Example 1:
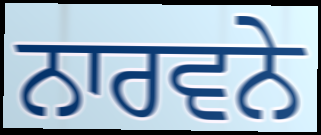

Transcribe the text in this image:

ਨਾਰਵਨੇ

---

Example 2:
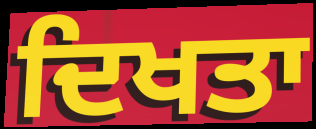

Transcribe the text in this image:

ਦਿਖਤਾ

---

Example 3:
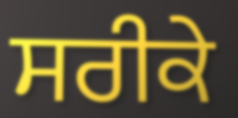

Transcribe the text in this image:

ਸਰੀਕੇ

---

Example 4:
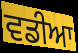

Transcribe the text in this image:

ਵਡੀਆ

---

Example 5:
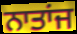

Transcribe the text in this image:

ਨਾਤਾਂਜ